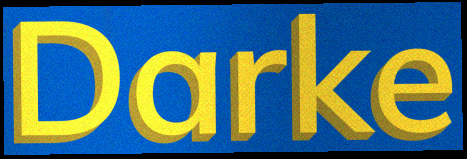
Darke